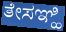
ತೇಸಞ್ಹಿ